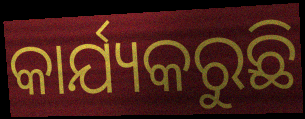
କାର୍ଯ୍ୟକରୁଛି